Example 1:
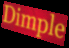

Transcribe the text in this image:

Dimple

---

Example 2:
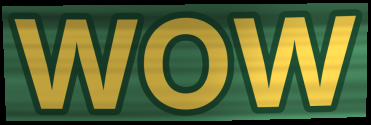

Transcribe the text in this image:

WOW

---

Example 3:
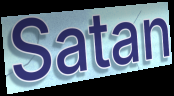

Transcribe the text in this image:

Satan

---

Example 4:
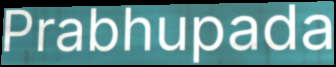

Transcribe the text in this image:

Prabhupada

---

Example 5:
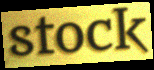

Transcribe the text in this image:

stock